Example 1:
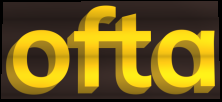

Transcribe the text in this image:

ofta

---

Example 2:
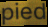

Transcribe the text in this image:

pied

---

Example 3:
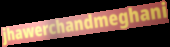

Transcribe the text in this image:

jhawerchandmeghani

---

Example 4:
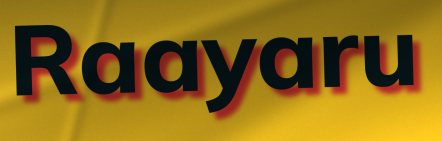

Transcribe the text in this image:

Raayaru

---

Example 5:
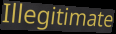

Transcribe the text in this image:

Illegitimate